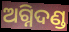
ଅଗ୍ନିଦଣ୍ଡ